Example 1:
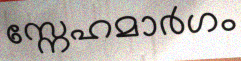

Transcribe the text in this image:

സ്നേഹമാർഗം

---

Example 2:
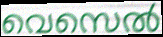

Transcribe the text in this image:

വെസെൽ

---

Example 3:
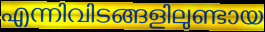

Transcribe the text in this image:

എന്നിവിടങ്ങളിലുണ്ടായ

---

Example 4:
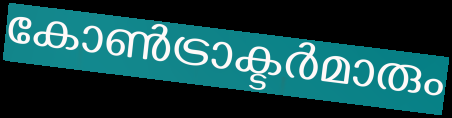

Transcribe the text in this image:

കോൺട്രാക്ടർമാരും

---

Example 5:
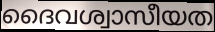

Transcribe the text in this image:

ദൈവശ്വാസീയത